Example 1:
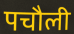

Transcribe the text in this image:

पचौली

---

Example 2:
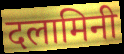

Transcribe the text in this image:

दलामिनी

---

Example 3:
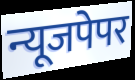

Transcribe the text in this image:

न्‍यूजपेपर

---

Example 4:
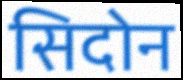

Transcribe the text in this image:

सिदोन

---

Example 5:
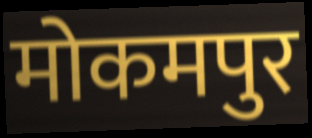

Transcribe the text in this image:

मोकमपुर